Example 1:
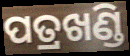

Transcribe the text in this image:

ପତ୍ରଖଣ୍ଡି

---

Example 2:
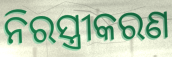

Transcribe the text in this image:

ନିରସ୍ତ୍ରୀକରଣ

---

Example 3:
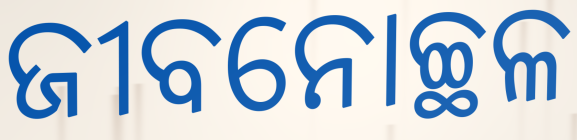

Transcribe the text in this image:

ଜୀବନୋଚ୍ଛଳ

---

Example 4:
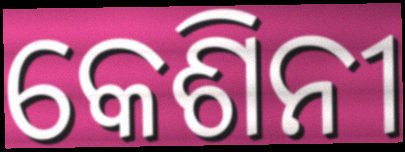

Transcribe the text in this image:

କେଶିନୀ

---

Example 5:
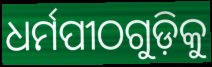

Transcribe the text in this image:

ଧର୍ମପୀଠଗୁଡ଼ିକୁ